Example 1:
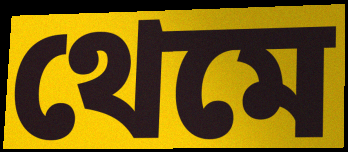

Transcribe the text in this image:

থেমে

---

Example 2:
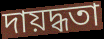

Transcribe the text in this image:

দায়দ্ধতা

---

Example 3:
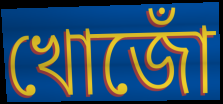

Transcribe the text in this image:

খোজোঁ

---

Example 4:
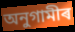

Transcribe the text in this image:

অনুগামীৰ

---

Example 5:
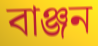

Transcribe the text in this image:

বাঞ্জন